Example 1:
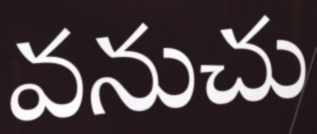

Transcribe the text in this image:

వనుచు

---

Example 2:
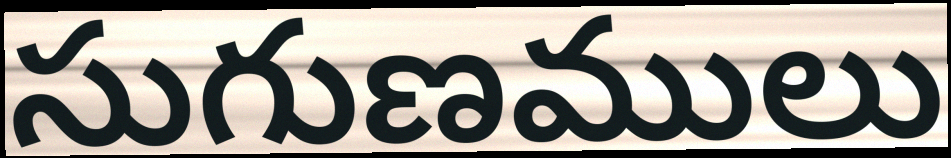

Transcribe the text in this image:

సుగుణములు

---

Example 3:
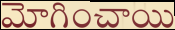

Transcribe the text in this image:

మోగించాయి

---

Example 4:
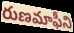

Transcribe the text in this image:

రుణమాఫీని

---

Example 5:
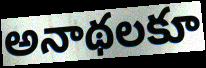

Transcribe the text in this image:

అనాథలకూ